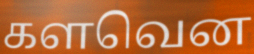
களவென